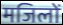
मजिलों